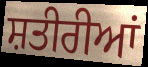
ਸ਼ਤੀਰੀਆਂ